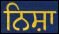
ਨਿਸ਼ਾ